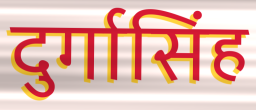
दुर्गासिंह